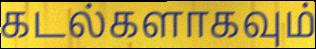
கடல்களாகவும்